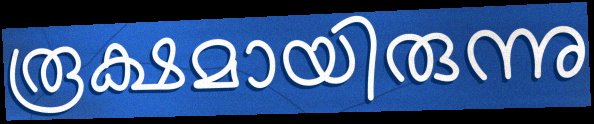
രൂക്ഷമായിരുന്നു